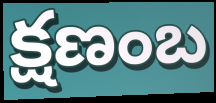
క్షణంబ